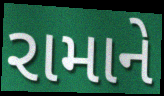
રામાને